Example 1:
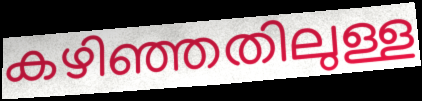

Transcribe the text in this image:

കഴിഞ്ഞതിലുള്ള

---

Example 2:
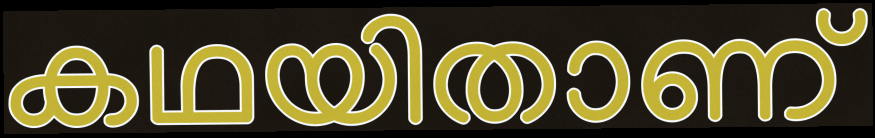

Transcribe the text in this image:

കഥയിതാണ്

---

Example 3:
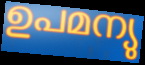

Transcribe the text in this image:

ഉപമന്യു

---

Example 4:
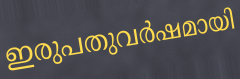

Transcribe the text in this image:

ഇരുപതുവർഷമായി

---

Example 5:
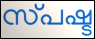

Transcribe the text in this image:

സ്‌പഷ്ട